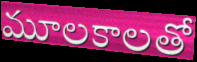
మూలకాలతో